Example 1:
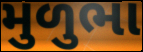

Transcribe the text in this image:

મુળુભા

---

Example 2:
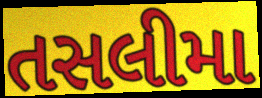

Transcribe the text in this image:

તસલીમા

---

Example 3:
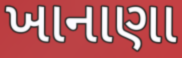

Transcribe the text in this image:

ખાનાણા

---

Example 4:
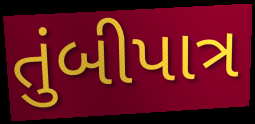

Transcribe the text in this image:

તુંબીપાત્ર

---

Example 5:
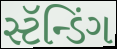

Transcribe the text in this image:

સ્ટૅન્ડિંગ